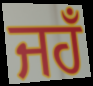
ਜਹਁ